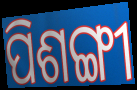
ପିଶଙ୍ଗୀ